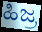
ಹಿಜ್ರ